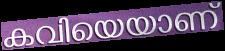
കവിയെയാണ്